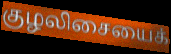
குழலிசையைக்